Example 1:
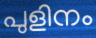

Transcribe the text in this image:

പുളിനം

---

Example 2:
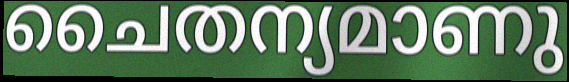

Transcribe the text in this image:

ചൈതന്യമാണു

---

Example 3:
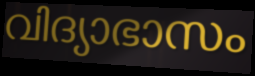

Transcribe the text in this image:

വിദ്യാഭാസം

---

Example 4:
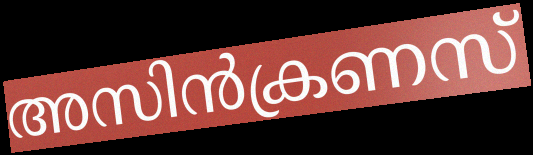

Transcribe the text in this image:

അസിൻക്രണസ്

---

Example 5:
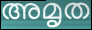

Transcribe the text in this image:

അമൃത